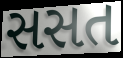
સસત